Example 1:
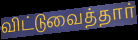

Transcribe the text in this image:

விட்டுவைத்தார்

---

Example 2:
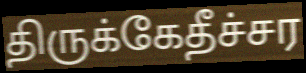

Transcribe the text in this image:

திருக்கேதீச்சர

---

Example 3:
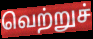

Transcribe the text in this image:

வெற்றுச்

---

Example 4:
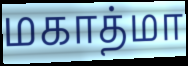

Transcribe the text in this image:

மகாத்மா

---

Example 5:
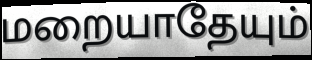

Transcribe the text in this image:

மறையாதேயும்